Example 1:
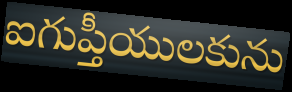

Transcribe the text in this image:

ఐగుప్తీయులకును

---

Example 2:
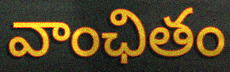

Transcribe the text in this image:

వాంఛితం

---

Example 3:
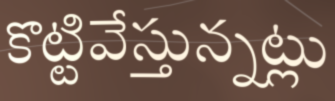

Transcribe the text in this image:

కొట్టివేస్తున్నట్లు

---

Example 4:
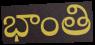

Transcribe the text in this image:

భాంతి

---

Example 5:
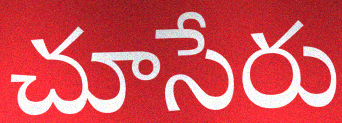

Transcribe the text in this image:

చూసేరు